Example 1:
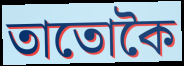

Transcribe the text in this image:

তাতোকৈ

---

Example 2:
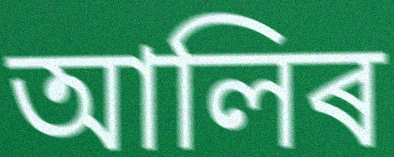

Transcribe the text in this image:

আলিৰ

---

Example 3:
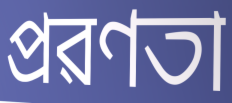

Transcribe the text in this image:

প্ৰৱণতা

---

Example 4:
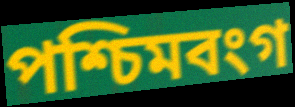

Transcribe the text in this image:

পশ্চিমবংগ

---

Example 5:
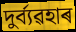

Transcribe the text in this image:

দুৰ্ব্যৱহাৰ